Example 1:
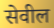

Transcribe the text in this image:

सेवील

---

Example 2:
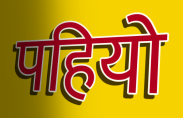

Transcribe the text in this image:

पहियो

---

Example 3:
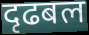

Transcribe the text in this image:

दृढबल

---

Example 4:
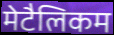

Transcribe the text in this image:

मेटैलिकम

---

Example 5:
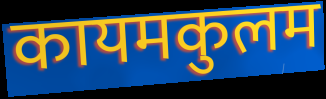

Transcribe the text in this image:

कायमकुलम